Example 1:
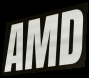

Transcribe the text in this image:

AMD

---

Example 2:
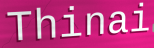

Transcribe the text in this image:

Thinai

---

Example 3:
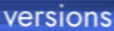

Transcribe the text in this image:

versions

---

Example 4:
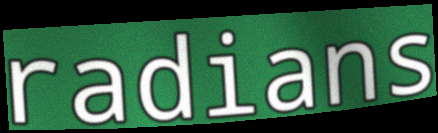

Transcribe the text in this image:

radians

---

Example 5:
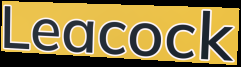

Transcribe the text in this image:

Leacock